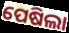
ପେଷିଲା